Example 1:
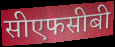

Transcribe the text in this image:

सीएफसीबी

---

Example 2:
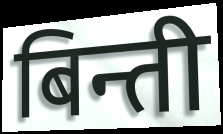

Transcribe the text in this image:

बिन्ती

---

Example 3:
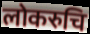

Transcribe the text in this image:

लोकरुचि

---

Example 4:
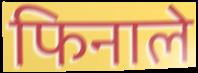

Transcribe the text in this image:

फिनाले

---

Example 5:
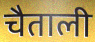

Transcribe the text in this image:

चैताली